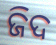
ଜିଦ